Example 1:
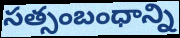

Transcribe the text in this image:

సత్సంబంధాన్ని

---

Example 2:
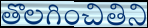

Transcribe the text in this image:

తొలగించితిని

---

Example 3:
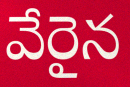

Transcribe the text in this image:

వేరైన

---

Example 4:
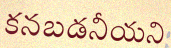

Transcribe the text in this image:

కనబడనీయని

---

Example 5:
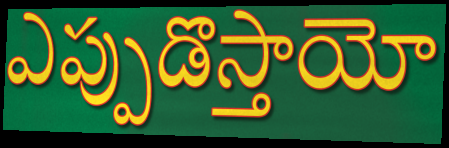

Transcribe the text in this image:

ఎప్పుడొస్తాయో